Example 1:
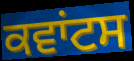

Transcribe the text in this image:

ਕਵਾਂਟਸ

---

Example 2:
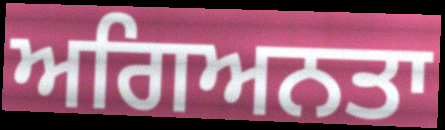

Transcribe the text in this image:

ਅਗਿਅਨਤਾ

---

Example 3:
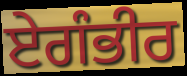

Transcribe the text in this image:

ਏਗੰਭੀਰ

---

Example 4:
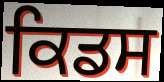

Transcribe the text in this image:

ਕਿਡਸ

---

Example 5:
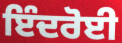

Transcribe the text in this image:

ਇੰਦਰੋਈ